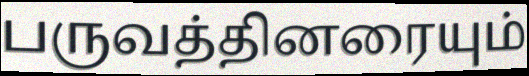
பருவத்தினரையும்